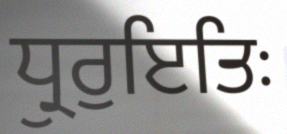
ਧ੍ਰੁਰੁਇਤਿਃ